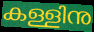
കള്ളിനു